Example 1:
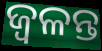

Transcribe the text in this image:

ଜ୍ଵଳନ୍ତ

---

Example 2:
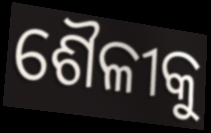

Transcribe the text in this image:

ଶୈଳୀକୁ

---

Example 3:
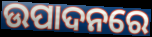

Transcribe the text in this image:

ଉପାଦନରେ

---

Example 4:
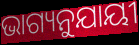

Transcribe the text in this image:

ଭାଗ୍ୟନୁଯାୟୀ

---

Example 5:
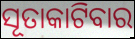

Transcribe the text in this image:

ସୂତାକାଟିବାର